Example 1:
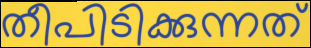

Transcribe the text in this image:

തീപിടിക്കുന്നത്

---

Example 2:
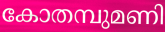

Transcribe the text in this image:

കോതമ്പുമണി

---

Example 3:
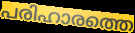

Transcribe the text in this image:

പരിഹാരത്തെ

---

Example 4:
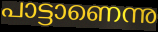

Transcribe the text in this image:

പാട്ടാണെന്നു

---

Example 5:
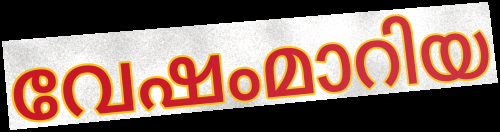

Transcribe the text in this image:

വേഷംമാറിയ